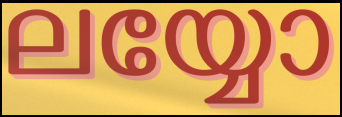
ലയ്യോ